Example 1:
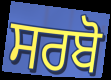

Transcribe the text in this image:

ਸਰਬੋ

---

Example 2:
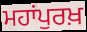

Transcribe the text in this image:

ਮਹਾਂਪੁਰਖ਼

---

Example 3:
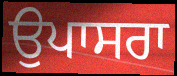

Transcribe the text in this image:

ਉਪਾਸਰਾ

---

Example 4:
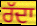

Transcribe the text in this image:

ਰੱਦਾ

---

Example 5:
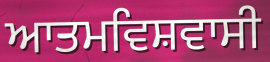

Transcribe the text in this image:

ਆਤਮਵਿਸ਼ਵਾਸੀ